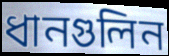
ধানগুলিন